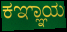
ಕಞ್ಞಾಯ